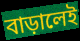
বাড়ালেই